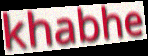
khabhe